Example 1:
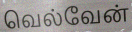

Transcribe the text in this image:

வெல்வேன்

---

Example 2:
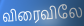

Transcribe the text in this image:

விரைவிலே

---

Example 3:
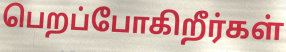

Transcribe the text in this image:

பெறப்போகிறீர்கள்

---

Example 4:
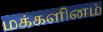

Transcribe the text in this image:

மக்களினம்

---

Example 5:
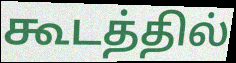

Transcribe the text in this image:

கூடத்தில்